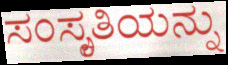
ಸಂಸ್ಕೃತಿಯನ್ನು